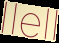
Ilell